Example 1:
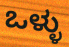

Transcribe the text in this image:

ಒಳ್ಳು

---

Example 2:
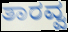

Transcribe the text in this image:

ತಾರವ್ವ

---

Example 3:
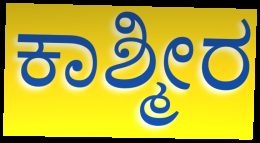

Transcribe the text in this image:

ಕಾಶ್ಮೀರ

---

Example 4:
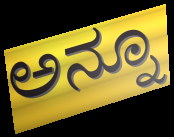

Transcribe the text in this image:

ಅನ್ನೂ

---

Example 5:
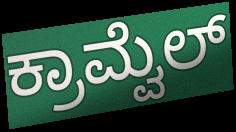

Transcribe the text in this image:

ಕ್ರಾಮ್ವೆಲ್